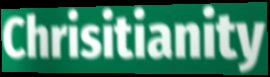
Chrisitianity